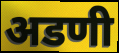
अडणी